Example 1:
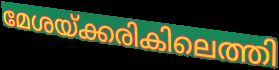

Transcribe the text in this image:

മേശയ്ക്കരികിലെത്തി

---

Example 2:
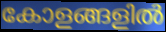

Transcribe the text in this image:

കോളങ്ങളിൽ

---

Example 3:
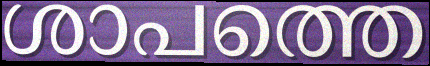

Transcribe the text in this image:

ശാപത്തെ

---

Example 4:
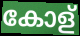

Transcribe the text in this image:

കോള്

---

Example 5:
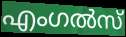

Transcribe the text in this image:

എംഗൽസ്